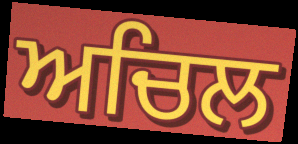
ਅਚਿਲ